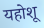
यहोशू